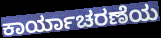
ಕಾರ್ಯಾಚರಣೆಯ